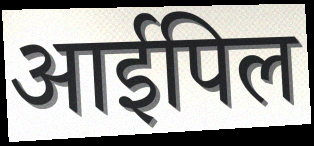
आईपिल